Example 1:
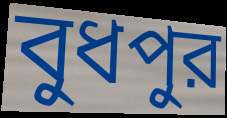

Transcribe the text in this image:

বুধপুর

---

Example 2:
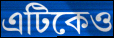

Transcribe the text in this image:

এটিকেও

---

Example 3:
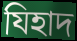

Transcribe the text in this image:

যিহাদ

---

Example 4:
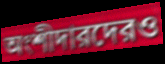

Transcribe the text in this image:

অংশীদারদেরও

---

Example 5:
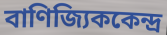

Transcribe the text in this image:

বাণিজ্যিককেন্দ্র